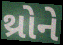
થ્રોને